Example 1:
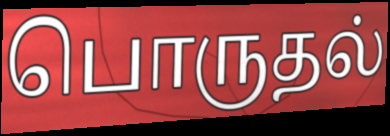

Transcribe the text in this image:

பொருதல்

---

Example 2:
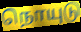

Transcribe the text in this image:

நொயுடு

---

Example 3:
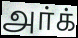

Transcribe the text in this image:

அர்க்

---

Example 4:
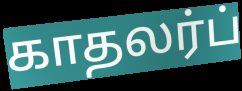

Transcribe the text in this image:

காதலர்ப்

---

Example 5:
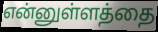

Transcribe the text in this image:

என்னுள்ளத்தை